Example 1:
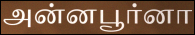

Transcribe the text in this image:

அன்னபூர்னா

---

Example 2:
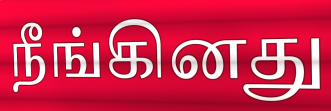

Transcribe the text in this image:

நீங்கினது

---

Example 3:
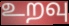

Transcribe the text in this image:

உறவு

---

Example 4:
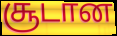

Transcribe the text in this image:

சூடான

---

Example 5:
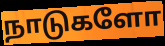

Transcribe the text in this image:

நாடுகளோ